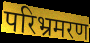
परिभ्रमरण